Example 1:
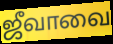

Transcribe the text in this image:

ஜீவாவை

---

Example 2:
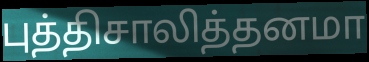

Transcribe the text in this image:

புத்திசாலித்தனமா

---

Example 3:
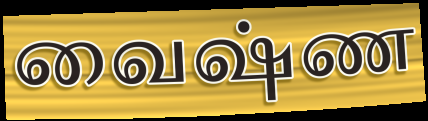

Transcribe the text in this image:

வைஷ்ண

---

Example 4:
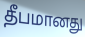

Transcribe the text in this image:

தீபமானது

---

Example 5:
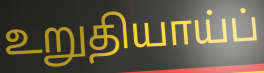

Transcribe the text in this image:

உறுதியாய்ப்